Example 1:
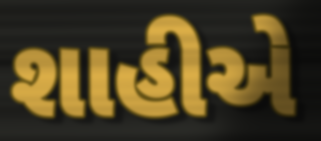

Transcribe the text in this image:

શાહીએ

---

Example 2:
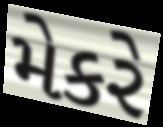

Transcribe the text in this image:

મેકરે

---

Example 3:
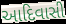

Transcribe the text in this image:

આદિવાસી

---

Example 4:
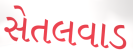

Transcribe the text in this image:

સેતલવાડ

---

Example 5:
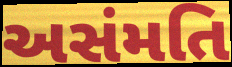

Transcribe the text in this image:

અસંમતિ